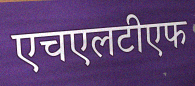
एचएलटीएफ